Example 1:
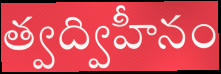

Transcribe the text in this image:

త్వద్విహీనం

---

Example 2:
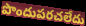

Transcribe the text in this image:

పొందుపరచలేదు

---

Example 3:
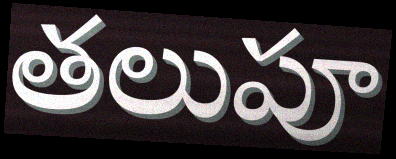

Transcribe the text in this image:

తలుపూ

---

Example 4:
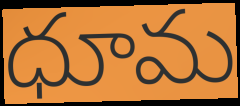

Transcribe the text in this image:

ధూమ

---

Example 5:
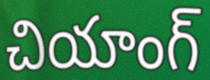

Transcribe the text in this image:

చియాంగ్